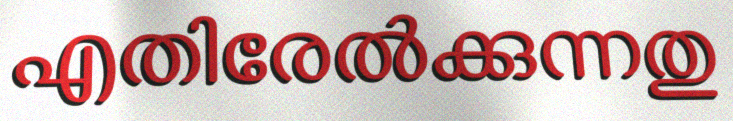
എതിരേൽക്കുന്നതു